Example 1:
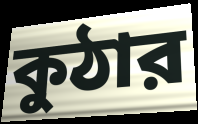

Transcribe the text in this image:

কুঠার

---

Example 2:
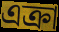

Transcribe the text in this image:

এক্রা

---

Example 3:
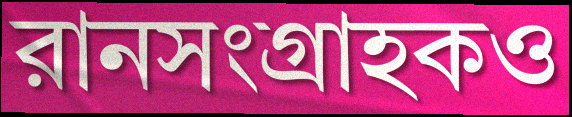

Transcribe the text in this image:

রানসংগ্রাহকও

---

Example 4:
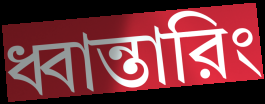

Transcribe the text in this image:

ধ্বান্তারিং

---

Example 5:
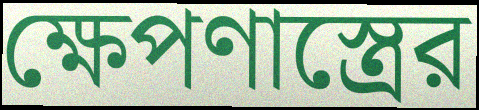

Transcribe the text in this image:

ক্ষেপণাস্ত্রের